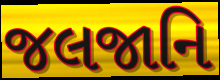
જલજાનિ